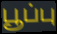
பூப்பு